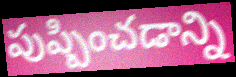
పుష్పించడాన్ని